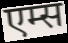
एम्‍स